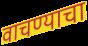
वाचण्याचा